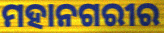
ମହାନଗରୀର